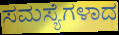
ಸಮಸ್ಯೆಗಳಾದ